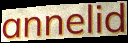
annelid